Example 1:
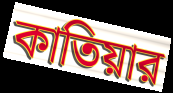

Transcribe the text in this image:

কাতিয়ার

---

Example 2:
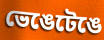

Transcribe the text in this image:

ভেঙেটেঙে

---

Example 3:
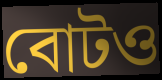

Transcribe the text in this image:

বোটও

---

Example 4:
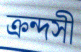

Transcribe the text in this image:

ক্রন্দসী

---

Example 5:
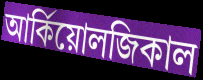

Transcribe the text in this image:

আর্কিয়োলজিকাল